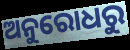
ଅନୁରୋଧରୁ